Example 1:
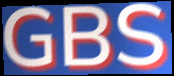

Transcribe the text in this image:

GBS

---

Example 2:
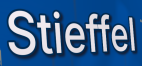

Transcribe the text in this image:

Stieffel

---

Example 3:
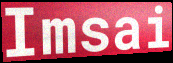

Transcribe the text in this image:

Imsai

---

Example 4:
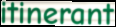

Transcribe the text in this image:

itinerant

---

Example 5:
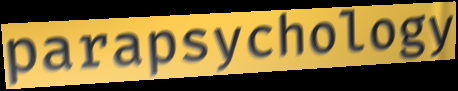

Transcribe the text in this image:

parapsychology